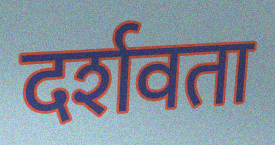
दर्शवता